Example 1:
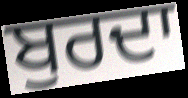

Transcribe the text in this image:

ਬੁਰਦਾ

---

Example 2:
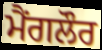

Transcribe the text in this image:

ਮੈਂਗਲੌਰ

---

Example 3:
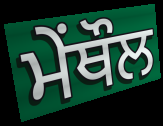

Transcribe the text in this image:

ਮੇਂਥੌਲ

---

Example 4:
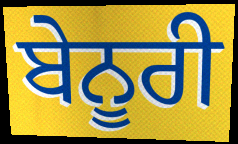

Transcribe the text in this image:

ਬੇਨੂਰੀ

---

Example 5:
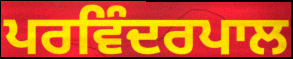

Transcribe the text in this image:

ਪਰਵਿੰਦਰਪਾਲ